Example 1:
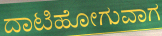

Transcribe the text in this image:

ದಾಟಿಹೋಗುವಾಗ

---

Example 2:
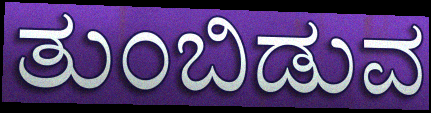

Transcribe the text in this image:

ತುಂಬಿಡುವ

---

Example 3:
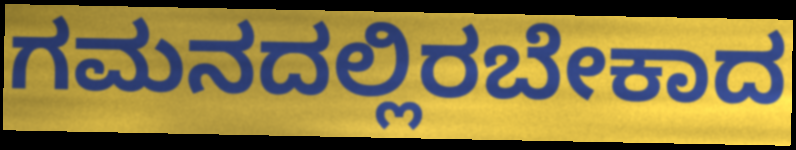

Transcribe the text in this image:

ಗಮನದಲ್ಲಿರಬೇಕಾದ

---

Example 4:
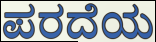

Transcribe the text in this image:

ಪರದೆಯ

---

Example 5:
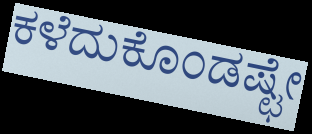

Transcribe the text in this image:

ಕಳೆದುಕೊಂಡಷ್ಟೇ